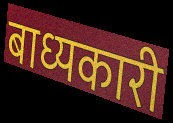
बाध्‍यकारी